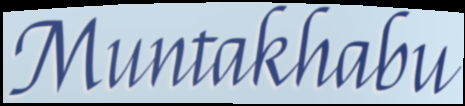
Muntakhabu